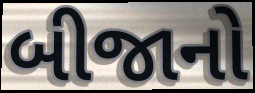
બીજાનો